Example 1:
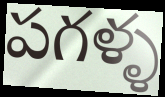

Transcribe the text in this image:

పగళ్ళ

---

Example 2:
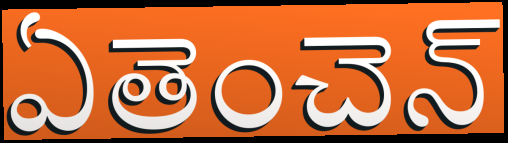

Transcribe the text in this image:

ఏతెంచెన్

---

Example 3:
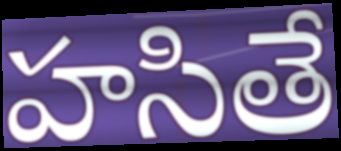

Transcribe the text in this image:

హసితే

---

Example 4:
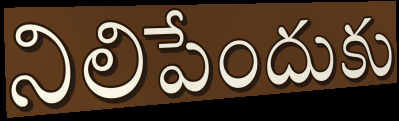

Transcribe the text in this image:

నిలిపేందుకు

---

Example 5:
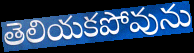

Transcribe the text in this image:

తెలియకపోవును